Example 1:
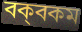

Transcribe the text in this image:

বক্‌বকম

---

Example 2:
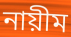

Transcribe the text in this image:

নায়ীম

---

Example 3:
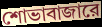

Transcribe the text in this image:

শোভাবাজারে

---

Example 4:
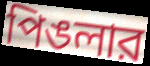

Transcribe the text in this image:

পিঙলার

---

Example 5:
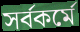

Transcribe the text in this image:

সর্বকর্মে